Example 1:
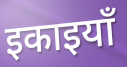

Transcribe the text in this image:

इकाइयाँ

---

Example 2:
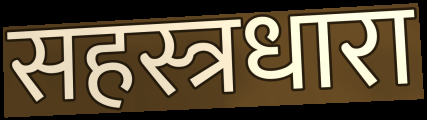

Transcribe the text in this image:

सहस्त्रधारा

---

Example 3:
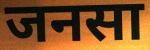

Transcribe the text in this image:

जनसा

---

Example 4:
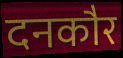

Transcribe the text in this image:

दनकौर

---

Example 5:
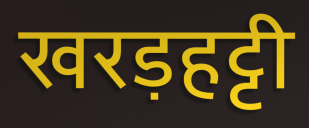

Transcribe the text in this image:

खरड़हट्टी